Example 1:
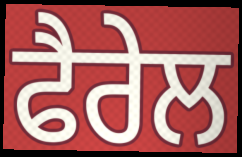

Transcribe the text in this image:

ਫੈਰੇਲ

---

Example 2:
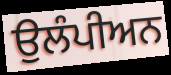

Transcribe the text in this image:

ਉੁਲੰਪੀਅਨ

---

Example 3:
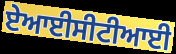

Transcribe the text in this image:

ਏਆਈਸੀਟੀਆਈ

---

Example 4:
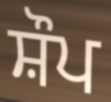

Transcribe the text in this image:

ਸ਼ੌਪ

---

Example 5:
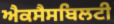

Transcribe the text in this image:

ਐਕਸੈਸਬਿਲਟੀ